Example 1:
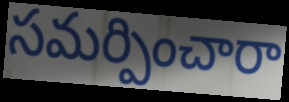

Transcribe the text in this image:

సమర్పించారా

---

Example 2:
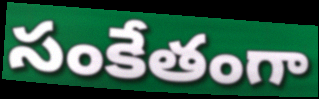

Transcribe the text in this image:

సంకేతంగా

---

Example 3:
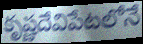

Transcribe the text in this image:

కృష్ణదేవిపేటలోనే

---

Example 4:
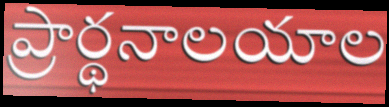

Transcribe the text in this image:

ప్రార్థనాలయాల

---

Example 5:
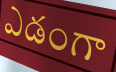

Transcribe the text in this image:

ఎడంగా